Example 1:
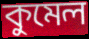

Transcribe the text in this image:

কুমেল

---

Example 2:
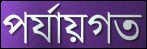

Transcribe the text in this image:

পর্যায়গত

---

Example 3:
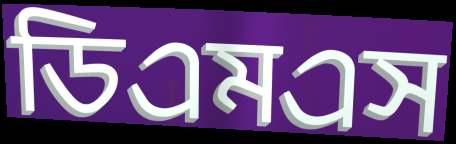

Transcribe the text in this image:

ডিএমএস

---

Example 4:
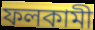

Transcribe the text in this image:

ফলকামী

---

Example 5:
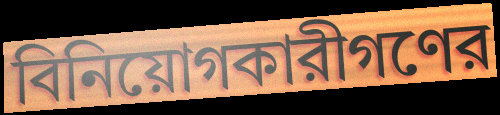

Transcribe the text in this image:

বিনিয়োগকারীগণের